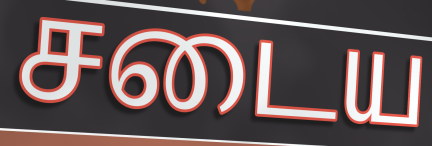
சடைய